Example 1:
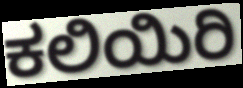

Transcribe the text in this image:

ಕಲಿಯಿರಿ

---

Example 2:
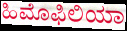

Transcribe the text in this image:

ಹಿಮೊಫಿಲಿಯಾ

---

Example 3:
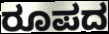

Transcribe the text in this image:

ರೂಪದ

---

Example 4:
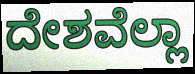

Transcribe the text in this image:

ದೇಶವೆಲ್ಲಾ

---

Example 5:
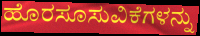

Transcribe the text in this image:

ಹೊರಸೂಸುವಿಕೆಗಳನ್ನು